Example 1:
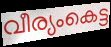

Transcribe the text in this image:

വീര്യംകെട്ട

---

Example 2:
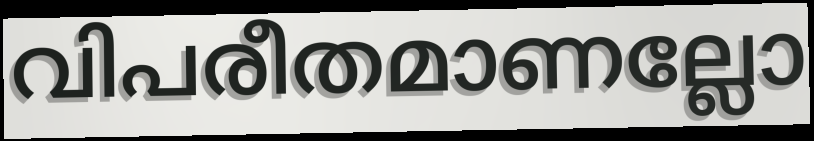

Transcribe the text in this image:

വിപരീതമാണല്ലോ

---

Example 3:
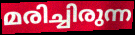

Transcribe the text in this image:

മരിച്ചിരുന്ന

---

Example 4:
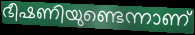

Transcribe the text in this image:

ഭീഷണിയുണ്ടെന്നാണ്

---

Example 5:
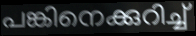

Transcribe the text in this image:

പങ്കിനെക്കുറിച്ച്